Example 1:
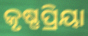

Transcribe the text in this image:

କୃଷ୍ଣପ୍ରିୟା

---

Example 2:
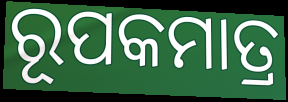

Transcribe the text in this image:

ରୂପକମାତ୍ର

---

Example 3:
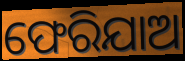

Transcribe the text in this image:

ଫେରିଯାଅ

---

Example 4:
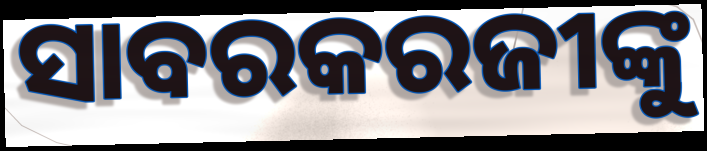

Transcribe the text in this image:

ସାବରକରଜୀଙ୍କୁ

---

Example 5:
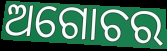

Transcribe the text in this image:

ଅଗୋଚର